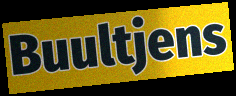
Buultjens